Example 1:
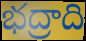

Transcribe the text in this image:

భద్రాది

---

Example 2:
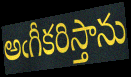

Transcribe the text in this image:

అఁగీకరిస్తాను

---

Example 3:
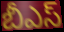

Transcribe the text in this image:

బీఎస్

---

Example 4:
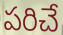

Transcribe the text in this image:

పరిచే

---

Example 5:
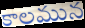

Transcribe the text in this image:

కాలమున